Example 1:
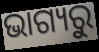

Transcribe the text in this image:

ଭାଗ୍ୟରୁ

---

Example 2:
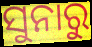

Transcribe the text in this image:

ସୁନାରୁ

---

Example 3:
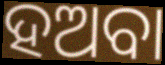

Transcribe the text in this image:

ହଅବା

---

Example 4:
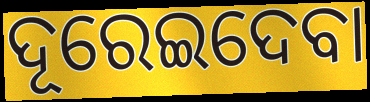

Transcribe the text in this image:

ଦୂରେଇଦେବା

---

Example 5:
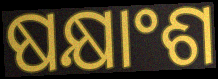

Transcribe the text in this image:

ଷକ୍ଷାଂଶ